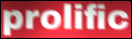
prolific